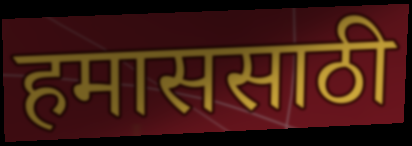
हमाससाठी